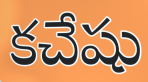
కచేషు